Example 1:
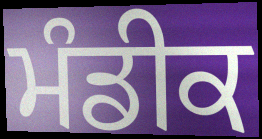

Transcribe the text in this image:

ਮੰਡੀਕ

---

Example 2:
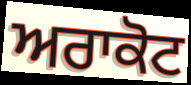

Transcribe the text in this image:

ਅਰਾਕੋਟ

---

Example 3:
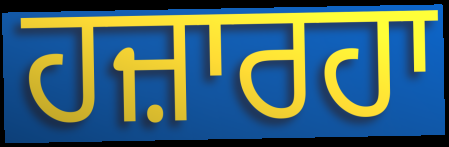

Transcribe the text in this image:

ਹਜ਼ਾਰਹਾ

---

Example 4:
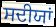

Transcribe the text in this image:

ਸਦੀਯਾਂ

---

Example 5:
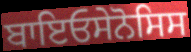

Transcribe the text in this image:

ਬਾਇਓਸੇਨੋਸਿਸ